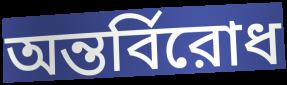
অন্তর্বিরোধ